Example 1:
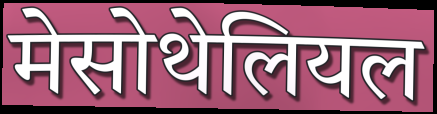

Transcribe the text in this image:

मेसोथेलियल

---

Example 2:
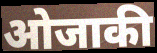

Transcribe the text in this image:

ओजाकी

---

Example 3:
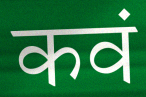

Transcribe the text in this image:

कवं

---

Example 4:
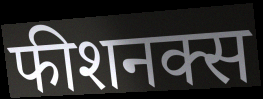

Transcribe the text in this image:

फीशनक्स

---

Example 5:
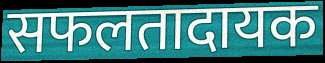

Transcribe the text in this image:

सफलतादायक